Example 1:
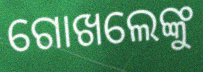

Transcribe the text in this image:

ଗୋଖଲେଙ୍କୁ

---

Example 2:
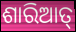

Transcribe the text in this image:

ଶାରିଆତ୍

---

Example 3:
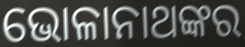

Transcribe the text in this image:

ଭୋଳାନାଥଙ୍କର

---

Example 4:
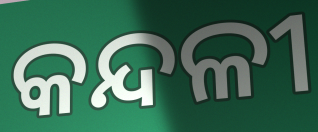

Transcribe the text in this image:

କନ୍ଦଳୀ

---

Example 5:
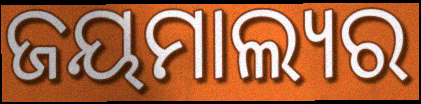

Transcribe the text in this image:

ଜୟମାଲ୍ୟର